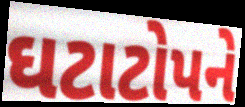
ઘટાટોપને